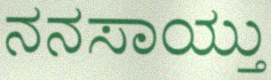
ನನಸಾಯ್ತು